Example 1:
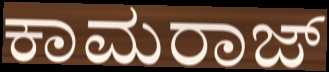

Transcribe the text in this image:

ಕಾಮರಾಜ್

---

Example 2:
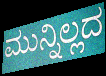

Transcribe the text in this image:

ಮುನ್ನಿಲ್ಲದ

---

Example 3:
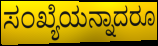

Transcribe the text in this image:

ಸಂಖ್ಯೆಯನ್ನಾದರೂ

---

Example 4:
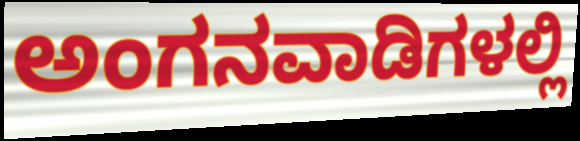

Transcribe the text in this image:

ಅಂಗನವಾಡಿಗಳಲ್ಲಿ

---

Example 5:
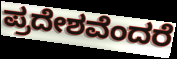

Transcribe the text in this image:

ಪ್ರದೇಶವೆಂದರೆ